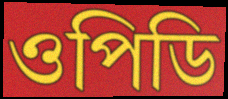
ওপিডি